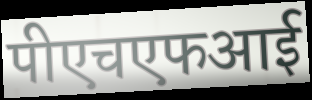
पीएचएफआई